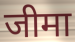
जीमा